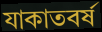
যাকাতবর্ষ